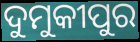
ଦୁମୁକୀପୁର